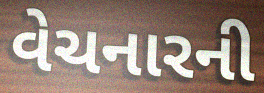
વેચનારની